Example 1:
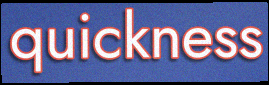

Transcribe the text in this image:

quickness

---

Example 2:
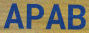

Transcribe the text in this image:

APAB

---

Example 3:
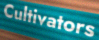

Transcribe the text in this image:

Cultivators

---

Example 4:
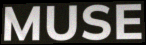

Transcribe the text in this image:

MUSE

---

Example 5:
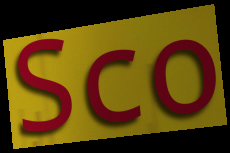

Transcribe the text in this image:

Sco